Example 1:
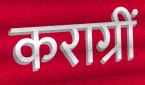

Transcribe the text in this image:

कराग्रीं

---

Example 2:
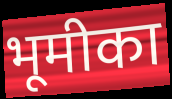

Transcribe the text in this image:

भूमीका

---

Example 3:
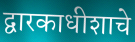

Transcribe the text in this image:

द्वारकाधीशाचे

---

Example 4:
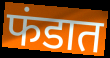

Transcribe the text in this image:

फंडात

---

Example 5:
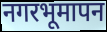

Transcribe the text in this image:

नगरभूमापन